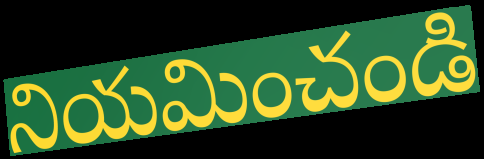
నియమించండి